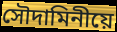
সৌদামিনীয়ে